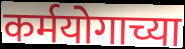
कर्मयोगाच्या